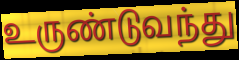
உருண்டுவந்து